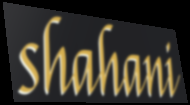
shahani